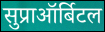
सुप्राऑर्बिटल